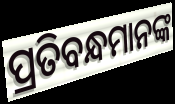
ପ୍ରତିବନ୍ଧମାନଙ୍କ